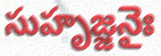
సుహృజ్జనైః